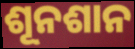
ଶୂନଶାନ